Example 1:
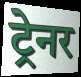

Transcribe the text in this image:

ट्रेनर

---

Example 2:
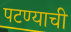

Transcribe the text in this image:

पटण्याची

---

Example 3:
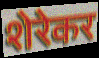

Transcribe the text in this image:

शेरेकर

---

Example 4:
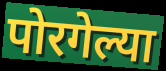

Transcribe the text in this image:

पोरगेल्या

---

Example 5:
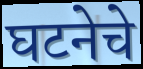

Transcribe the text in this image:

घटनेचे